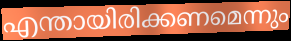
എന്തായിരിക്കണമെന്നും